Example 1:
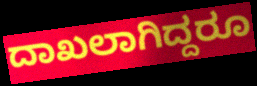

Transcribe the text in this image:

ದಾಖಲಾಗಿದ್ದರೂ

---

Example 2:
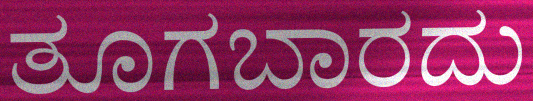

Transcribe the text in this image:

ತೂಗಬಾರದು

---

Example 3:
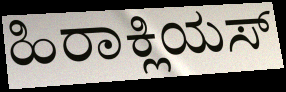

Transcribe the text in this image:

ಹಿರಾಕ್ಲಿಯಸ್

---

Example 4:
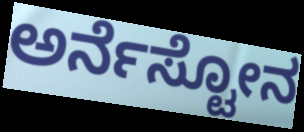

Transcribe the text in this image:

ಅರ್ನೆಸ್ಟೋನ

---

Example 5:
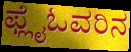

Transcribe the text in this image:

ಫ್ಲೈಓವರಿನ